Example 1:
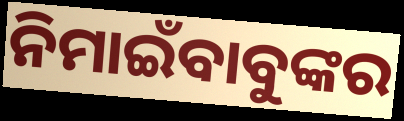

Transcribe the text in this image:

ନିମାଇଁବାବୁଙ୍କର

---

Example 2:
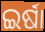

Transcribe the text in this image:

ଇର୍ଷା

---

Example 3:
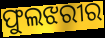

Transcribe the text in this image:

ଫୁଲଝରୀର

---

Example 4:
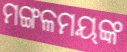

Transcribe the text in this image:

ମଙ୍ଗଳମୟଙ୍କ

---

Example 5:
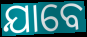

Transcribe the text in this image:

ଯାବେ